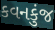
કવનકુંજ